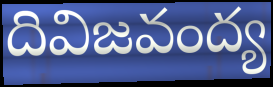
దివిజవంద్య